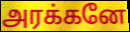
அரக்கனே